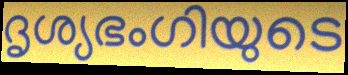
ദൃശ്യഭംഗിയുടെ